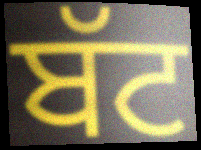
ਬੱਟ